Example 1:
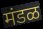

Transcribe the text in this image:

मंडळ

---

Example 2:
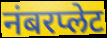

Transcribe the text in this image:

नंबरप्लेट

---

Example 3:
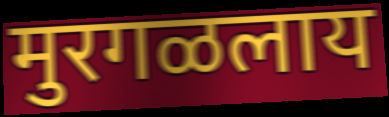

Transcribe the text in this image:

मुरगळलाय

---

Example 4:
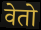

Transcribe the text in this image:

वेतो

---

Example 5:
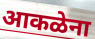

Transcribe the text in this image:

आकळेना